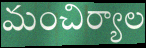
మంచిర్యాల